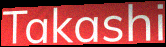
Takashi